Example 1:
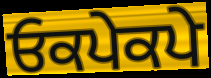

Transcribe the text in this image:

ਓਕਪੇਕਪੇ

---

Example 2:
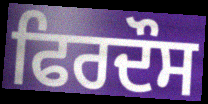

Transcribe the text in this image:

ਫਿਰਦੌਸ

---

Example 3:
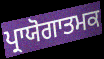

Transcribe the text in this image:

ਪ੍ਰਾਯੋਗਾਤਮਕ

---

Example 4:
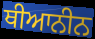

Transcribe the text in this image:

ਥੀਆਨੀਨ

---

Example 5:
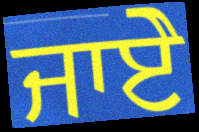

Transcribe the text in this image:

ਜਾਏੇ